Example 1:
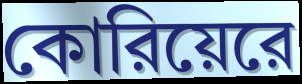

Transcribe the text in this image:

কোরিয়েরে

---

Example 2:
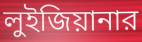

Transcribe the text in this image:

লুইজিয়ানার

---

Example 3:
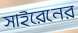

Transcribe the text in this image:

সাইরেনের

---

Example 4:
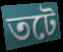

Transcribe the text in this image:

তটে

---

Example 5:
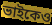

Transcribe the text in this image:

ভাইকেও